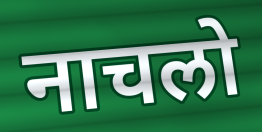
नाचलो